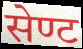
सेण्ट